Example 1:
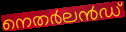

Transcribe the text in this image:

നെതർലൻഡ്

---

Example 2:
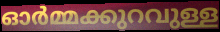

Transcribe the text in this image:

ഓർമ്മക്കുറവുള്ള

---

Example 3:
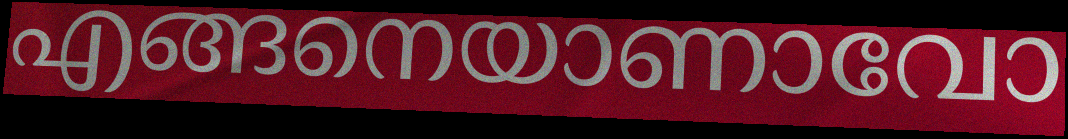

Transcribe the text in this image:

എങ്ങനെയാണാവോ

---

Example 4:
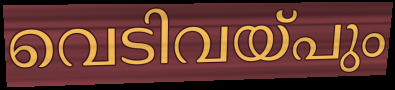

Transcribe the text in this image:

വെടിവയ്പും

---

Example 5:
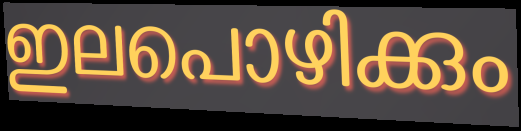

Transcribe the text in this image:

ഇലപൊഴിക്കും